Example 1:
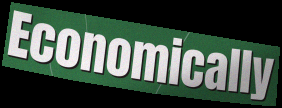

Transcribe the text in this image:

Economically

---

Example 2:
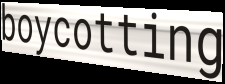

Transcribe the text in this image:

boycotting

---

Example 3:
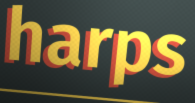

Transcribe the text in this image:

harps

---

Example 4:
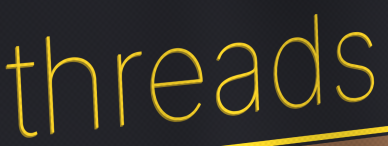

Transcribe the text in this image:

threads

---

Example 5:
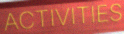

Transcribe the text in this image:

ACTIVITIES